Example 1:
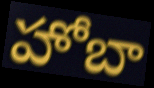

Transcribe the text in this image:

హోబా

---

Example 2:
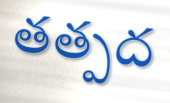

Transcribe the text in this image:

తత్పద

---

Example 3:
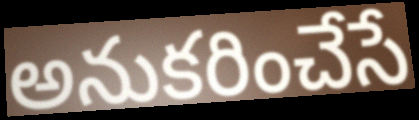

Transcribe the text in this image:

అనుకరించేసే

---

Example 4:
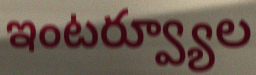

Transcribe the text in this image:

ఇంటర్వ్యూల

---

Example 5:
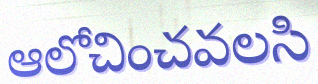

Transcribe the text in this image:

ఆలోచించవలసి